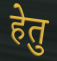
हेतु